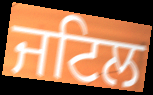
ਜਟਿਲ